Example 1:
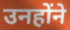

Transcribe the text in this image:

उनहोंने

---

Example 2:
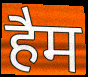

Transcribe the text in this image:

हैम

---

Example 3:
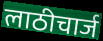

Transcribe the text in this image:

लाठीचार्ज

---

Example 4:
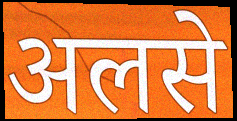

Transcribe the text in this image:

अलसे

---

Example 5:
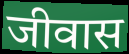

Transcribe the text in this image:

जीवास